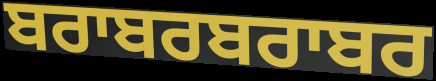
ਬਰਾਬਰਬਰਾਬਰ